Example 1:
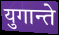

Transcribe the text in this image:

युगान्ते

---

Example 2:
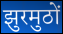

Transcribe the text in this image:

झुरमुठों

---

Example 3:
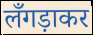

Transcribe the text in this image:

लँगड़ाकर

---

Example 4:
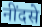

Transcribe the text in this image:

नींदसे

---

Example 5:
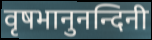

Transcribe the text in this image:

वृषभानुनन्दिनी